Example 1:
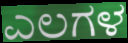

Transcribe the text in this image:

ಎಲಗಳ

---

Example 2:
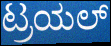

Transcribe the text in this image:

ಟ್ರಯಲ್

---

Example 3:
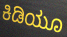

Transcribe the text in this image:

ಕಿಡಿಯೂ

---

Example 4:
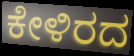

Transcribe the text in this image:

ಕೇಳಿರದ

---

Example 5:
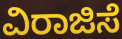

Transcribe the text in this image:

ವಿರಾಜಿಸೆ